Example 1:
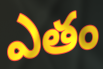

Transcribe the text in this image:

ఎతం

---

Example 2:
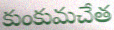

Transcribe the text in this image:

కుంకుమచేత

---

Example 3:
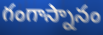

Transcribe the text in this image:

గంగాస్నానం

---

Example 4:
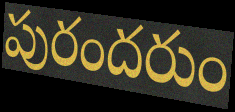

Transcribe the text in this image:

పురందరుం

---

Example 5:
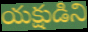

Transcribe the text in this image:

యక్షుడిని